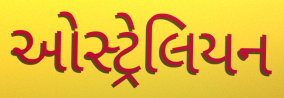
ઓસ્ટ્રેલિયન